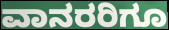
ವಾನರರಿಗೂ